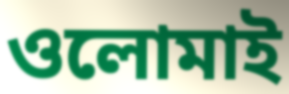
ওলোমাই